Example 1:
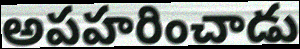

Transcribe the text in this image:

అపహరించాడు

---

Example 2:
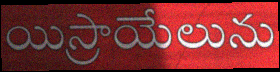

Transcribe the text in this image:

యిస్రాయేలును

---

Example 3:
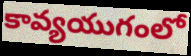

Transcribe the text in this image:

కావ్యయుగంలో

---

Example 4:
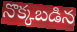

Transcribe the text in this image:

నొక్కబడిన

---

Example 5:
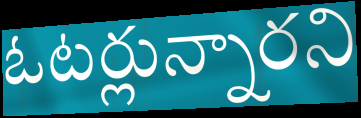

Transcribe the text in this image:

ఓటర్లున్నారని